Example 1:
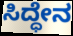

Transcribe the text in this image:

ಸಿದ್ಧೇನ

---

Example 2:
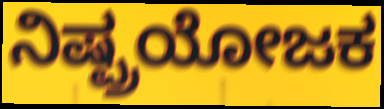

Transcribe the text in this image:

ನಿಷ್ಪ್ರಯೋಜಕ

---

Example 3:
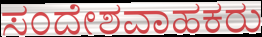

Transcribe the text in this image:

ಸಂದೇಶವಾಹಕರು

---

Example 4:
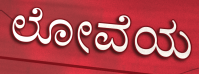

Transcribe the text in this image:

ಲೋವೆಯ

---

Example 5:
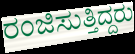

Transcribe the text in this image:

ರಂಜಿಸುತ್ತಿದ್ದರು